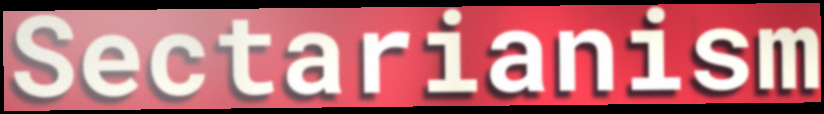
Sectarianism